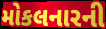
મોકલનારની